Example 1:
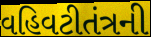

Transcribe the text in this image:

વહિવટીતંત્રની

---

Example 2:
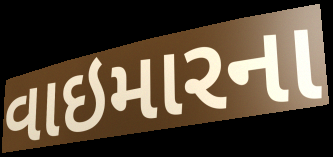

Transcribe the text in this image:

વાઇમારના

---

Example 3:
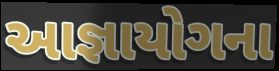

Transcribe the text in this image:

આજ્ઞાયોગના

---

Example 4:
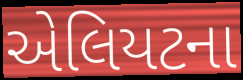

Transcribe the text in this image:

એલિયટના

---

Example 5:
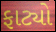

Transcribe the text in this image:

ફાટ્યો